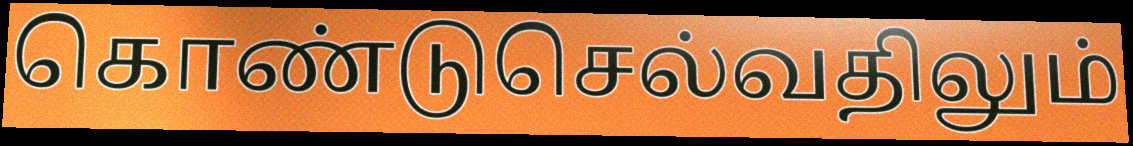
கொண்டுசெல்வதிலும்